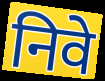
निवे